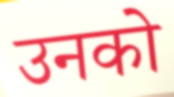
उनको